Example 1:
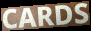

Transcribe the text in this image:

CARDS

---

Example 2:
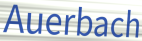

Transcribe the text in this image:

Auerbach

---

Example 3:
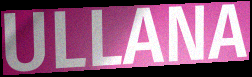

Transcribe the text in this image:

ULLANA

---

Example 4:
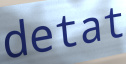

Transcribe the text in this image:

detat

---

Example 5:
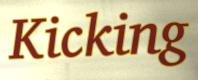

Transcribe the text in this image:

Kicking